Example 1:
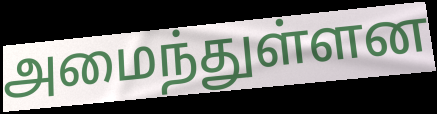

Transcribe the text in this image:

அமைந்துள்ளன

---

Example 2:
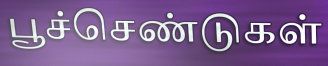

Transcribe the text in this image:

பூச்செண்டுகள்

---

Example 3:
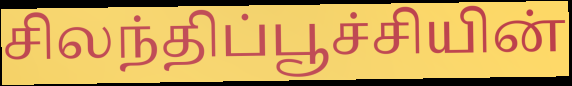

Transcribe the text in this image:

சிலந்திப்பூச்சியின்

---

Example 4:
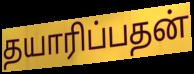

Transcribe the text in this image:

தயாரிப்பதன்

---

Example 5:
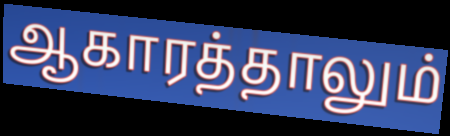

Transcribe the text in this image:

ஆகாரத்தாலும்